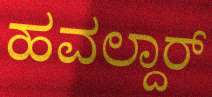
ಹವಲ್ದಾರ್